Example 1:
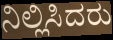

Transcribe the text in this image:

ನಿಲ್ಲಿಸಿದರು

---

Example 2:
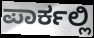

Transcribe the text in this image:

ಪಾರ್ಕಲ್ಲಿ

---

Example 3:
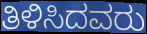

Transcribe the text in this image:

ತಿಳಿಸಿದವರು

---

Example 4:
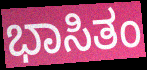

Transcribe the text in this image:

ಭಾಸಿತಂ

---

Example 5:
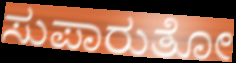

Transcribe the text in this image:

ಸುಪಾರುತೋ